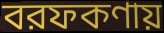
বরফকণায়